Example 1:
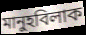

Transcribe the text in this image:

মানুহবিলাক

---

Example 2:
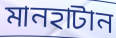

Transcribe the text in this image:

মানহাটান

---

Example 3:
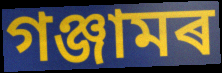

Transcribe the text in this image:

গঞ্জামৰ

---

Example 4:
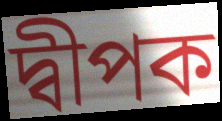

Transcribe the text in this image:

দ্বীপক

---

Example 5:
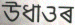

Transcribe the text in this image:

উধাওৰ